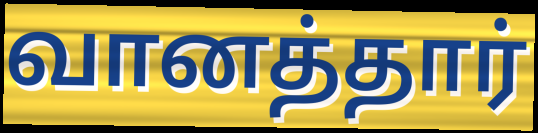
வானத்தார்